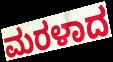
ಮರಳಾದ